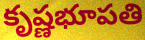
కృష్ణభూపతి